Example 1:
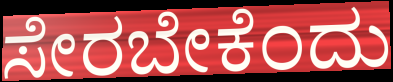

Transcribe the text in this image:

ಸೇರಬೇಕೆಂದು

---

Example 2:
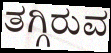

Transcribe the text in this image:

ತಗ್ಗಿರುವ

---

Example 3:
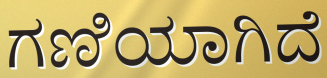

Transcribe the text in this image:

ಗಣಿಯಾಗಿದೆ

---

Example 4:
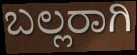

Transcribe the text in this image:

ಬಲ್ಲರಾಗಿ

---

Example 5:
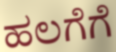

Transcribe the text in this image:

ಹಲಗೆಗೆ